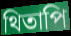
থিতাপি